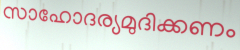
സാഹോദര്യമുദിക്കണം